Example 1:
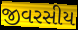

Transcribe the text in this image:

જીવરસીય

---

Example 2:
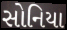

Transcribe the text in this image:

સોનિયા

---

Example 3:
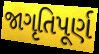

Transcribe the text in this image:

જાગૃતિપૂર્ણ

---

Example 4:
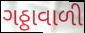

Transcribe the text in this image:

ગઠ્ઠાવાળી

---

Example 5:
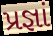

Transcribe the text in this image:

પ્રજ્ઞાં